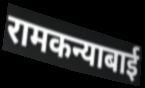
रामकन्याबाई